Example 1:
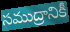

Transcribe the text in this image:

సముద్రానికీ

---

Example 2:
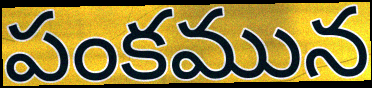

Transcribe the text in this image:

పంకమున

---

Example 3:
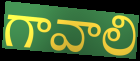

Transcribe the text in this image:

గావాలి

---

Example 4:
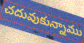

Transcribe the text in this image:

చదువుకున్నాము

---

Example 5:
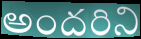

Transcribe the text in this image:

అందరిని